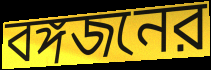
বঙ্গজনের